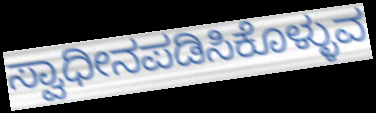
ಸ್ವಾಧೀನಪಡಿಸಿಕೊಳ್ಳುವ